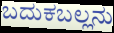
ಬದುಕಬಲ್ಲನು